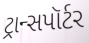
ટ્રાન્સપૉર્ટર